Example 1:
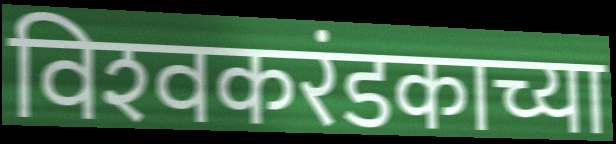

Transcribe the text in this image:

विश्‍वकरंडकाच्या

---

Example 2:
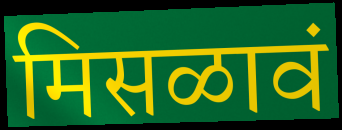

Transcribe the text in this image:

मिसळावं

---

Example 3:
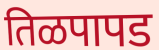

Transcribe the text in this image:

तिळपापड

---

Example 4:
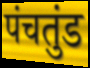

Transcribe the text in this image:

पंचतुंड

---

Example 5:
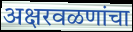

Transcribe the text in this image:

अक्षरवळणांचा